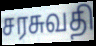
சரசுவதி